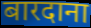
बारदाना